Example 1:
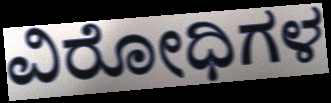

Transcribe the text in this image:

ವಿರೋಧಿಗಳ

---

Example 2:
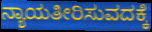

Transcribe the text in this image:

ನ್ಯಾಯತೀರಿಸುವದಕ್ಕೆ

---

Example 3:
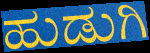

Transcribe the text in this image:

ಹುಡುಗಿ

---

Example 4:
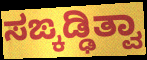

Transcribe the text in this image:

ಸಙ್ಕಡ್ಢಿತ್ವಾ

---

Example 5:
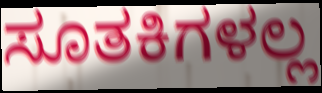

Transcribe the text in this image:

ಸೂತಕಿಗಳಲ್ಲ